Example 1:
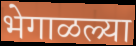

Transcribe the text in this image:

भेगाळल्या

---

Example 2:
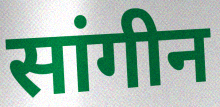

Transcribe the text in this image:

सांगीन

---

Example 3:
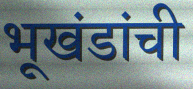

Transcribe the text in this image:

भूखंडांची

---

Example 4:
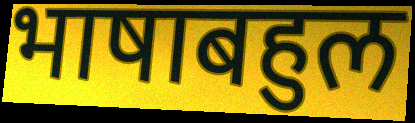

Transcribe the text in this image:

भाषाबहुल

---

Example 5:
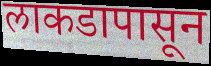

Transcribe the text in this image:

लाकडापासून